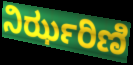
ನಿರ್ಝರಿಣಿ